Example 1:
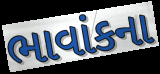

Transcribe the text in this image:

ભાવાંકના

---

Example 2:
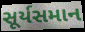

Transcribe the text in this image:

સૂર્યસમાન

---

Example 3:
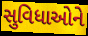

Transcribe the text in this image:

સુવિધાઓને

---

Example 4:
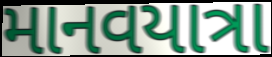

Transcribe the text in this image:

માનવયાત્રા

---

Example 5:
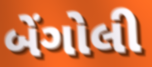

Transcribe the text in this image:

બેંગોલી